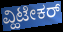
ವ್ಹಿಟೇಕರ್